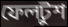
ফেলটুশ